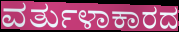
ವರ್ತುಳಾಕಾರದ